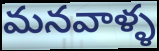
మనవాళ్ళ